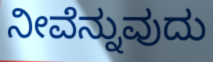
ನೀವೆನ್ನುವುದು